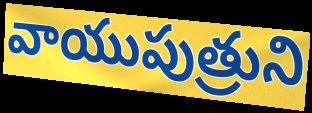
వాయుపుత్రుని